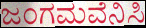
ಜಂಗಮವೆನಿಸಿ